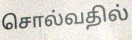
சொல்வதில்